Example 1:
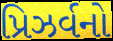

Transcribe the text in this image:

પ્રિઝર્વનો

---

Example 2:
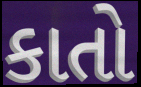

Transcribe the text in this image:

કાતો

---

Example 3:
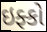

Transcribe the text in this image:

ઇફ્કો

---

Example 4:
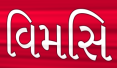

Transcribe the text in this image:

વિમસિ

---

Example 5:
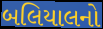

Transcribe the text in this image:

બલિયાલનો